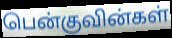
பென்குவின்கள்